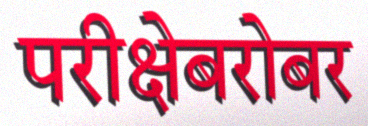
परीक्षेबरोबर